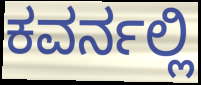
ಕವರ್ನಲ್ಲಿ